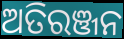
ଅତିରଞ୍ଜନ